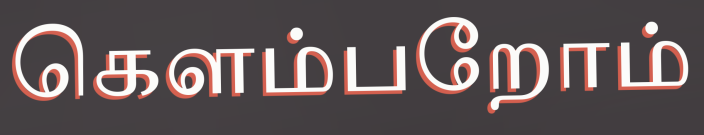
கெளம்பறோம்